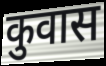
कुवास